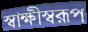
স্বাক্ষীস্বরূপ